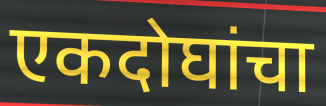
एकदोघांचा